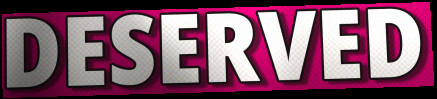
DESERVED